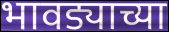
भावड्याच्या